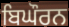
ਬਿਘੌਰਨ